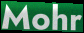
Mohr